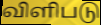
விளிபடு